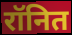
रॉनित